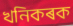
খনিকৰক